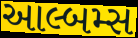
આલ્બમ્સ